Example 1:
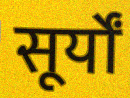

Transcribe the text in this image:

सूर्यों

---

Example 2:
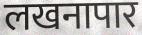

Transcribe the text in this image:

लखनापार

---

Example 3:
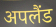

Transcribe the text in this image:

अपलैंड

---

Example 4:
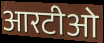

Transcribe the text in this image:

आरटीओ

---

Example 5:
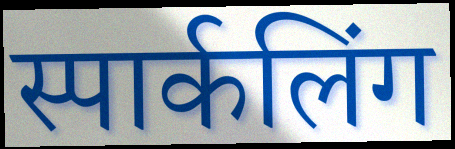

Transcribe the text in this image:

स्पार्कलिंग